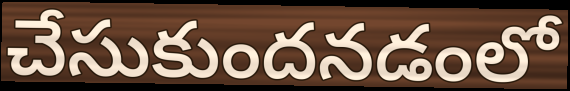
చేసుకుందనడంలో